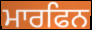
ਮਾਰਫਿਨ